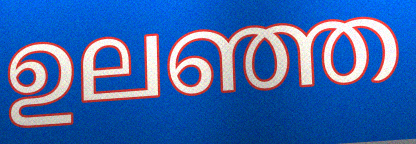
ഉലഞ്ഞ